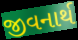
જીવનાર્થ